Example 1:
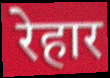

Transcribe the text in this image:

रेहार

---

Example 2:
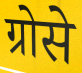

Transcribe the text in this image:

ग्रोसे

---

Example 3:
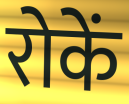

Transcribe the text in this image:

रोकें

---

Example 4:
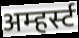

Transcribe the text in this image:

अम्हर्स्ट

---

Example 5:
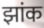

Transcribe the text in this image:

झांक